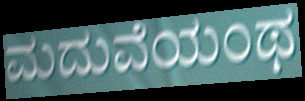
ಮದುವೆಯಂಥ